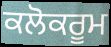
ਕਲੋਕਰੂਮ